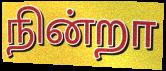
நின்றா